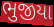
ભુજીયા